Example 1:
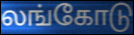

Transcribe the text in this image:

லங்கோடு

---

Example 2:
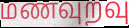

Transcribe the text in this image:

மணவுறவு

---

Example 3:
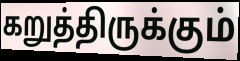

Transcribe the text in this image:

கறுத்திருக்கும்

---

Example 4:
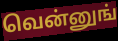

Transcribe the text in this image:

வென்னுங்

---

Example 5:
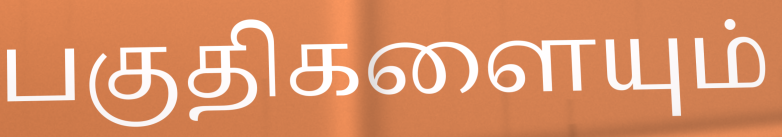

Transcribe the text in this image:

பகுதிகளையும்